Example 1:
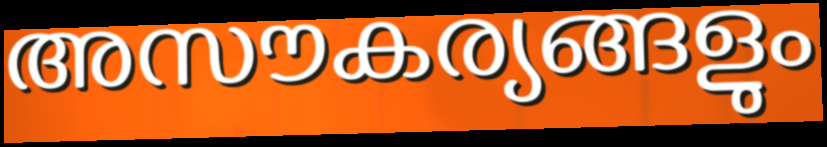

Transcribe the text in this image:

അസൗകര്യങ്ങളും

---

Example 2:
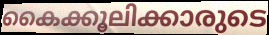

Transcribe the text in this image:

കൈക്കൂലിക്കാരുടെ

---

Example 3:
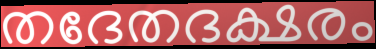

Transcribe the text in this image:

തദേതദക്ഷരം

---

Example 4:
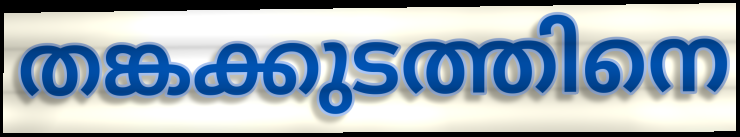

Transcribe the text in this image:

തങ്കക്കുടത്തിനെ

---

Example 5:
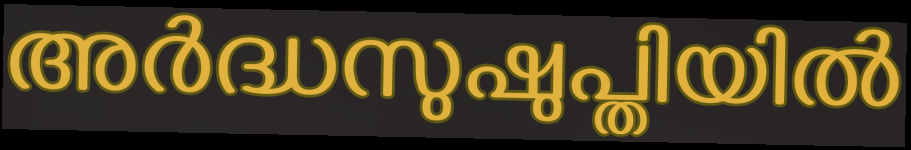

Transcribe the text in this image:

അർദ്ധസുഷുപ്തിയിൽ